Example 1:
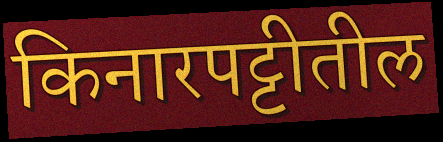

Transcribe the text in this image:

किनारपट्टीतील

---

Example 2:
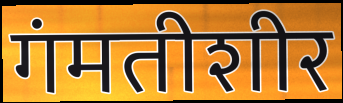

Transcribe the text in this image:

गंमतीशीर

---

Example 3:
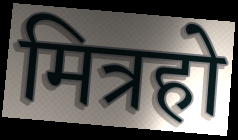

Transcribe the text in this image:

मित्रहो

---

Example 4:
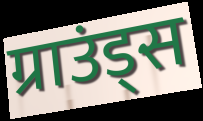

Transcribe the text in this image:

ग्राउंड्स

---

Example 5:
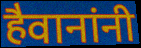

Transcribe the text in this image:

हैवानांनी